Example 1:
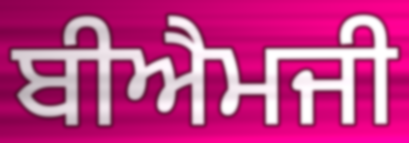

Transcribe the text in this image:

ਬੀਐਮਜੀ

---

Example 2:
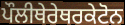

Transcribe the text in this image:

ਪੌਲੀਥੇਰੇਥਰਕੇਟੋਨ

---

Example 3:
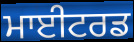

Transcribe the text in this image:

ਮਾਈਟਰਡ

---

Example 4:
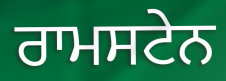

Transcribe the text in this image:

ਰਾਮਸਟੇਨ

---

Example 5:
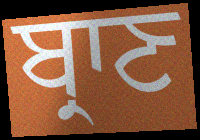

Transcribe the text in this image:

ਬ੍ਰਾਣ